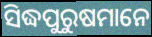
ସିଦ୍ଧପୁରୁଷମାନେ